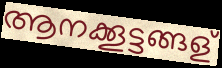
ആനക്കൂട്ടങ്ങള്